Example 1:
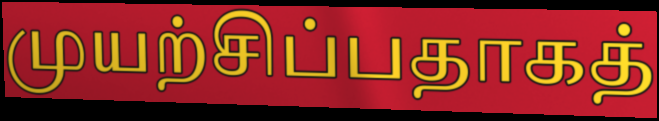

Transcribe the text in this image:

முயற்சிப்பதாகத்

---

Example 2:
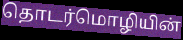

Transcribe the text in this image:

தொடர்மொழியின்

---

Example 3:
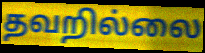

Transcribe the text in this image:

தவறில்லை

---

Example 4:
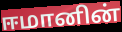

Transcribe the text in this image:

ஈமானின்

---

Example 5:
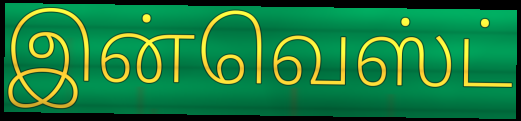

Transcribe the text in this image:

இன்வெஸ்ட்